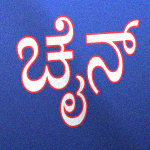
ಚೈನ್